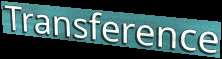
Transference